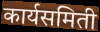
कार्यसमिती